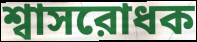
শ্বাসরোধক